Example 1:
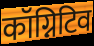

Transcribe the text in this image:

कॉग्निटिव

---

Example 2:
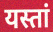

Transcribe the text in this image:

यस्तां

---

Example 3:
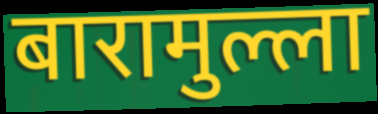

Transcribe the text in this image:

बारामुल्ला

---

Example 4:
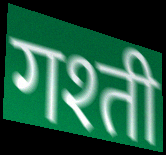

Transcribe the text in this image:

गश्‍ती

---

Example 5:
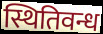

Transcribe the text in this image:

स्थितिवन्ध